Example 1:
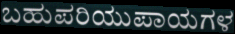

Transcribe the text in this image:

ಬಹುಪರಿಯುಪಾಯಗಳ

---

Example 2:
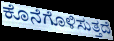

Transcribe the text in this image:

ಕೊನೆಗೊಳಿಸುತ್ತದೆ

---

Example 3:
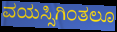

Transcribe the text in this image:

ವಯಸ್ಸಿಗಿಂತಲೂ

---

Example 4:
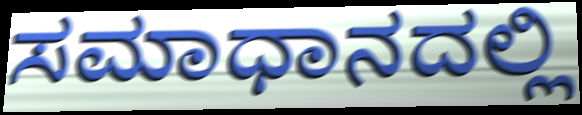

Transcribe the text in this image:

ಸಮಾಧಾನದಲ್ಲಿ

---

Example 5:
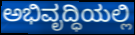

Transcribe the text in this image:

ಅಭಿವೃದ್ಧಿಯಲ್ಲಿ